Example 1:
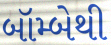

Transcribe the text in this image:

બૉમ્બેથી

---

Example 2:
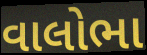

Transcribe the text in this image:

વાલોભા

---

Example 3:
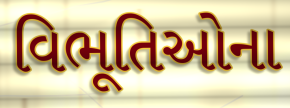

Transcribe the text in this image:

વિભૂતિઓના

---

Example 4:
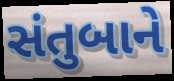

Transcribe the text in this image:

સંતુબાને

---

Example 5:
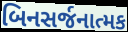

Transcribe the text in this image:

બિનસર્જનાત્મક